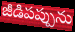
జీడిపప్పును